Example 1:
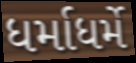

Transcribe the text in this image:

ધર્માધર્મે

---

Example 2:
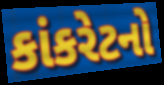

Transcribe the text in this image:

કાંકરેટનો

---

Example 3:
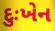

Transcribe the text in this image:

દુઃખેન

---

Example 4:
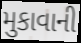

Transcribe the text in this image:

મુકાવાની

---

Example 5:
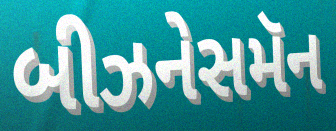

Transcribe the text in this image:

બીઝનેસમૅન